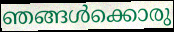
ഞങ്ങൾക്കൊരു